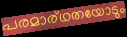
പരമാര്ഥതയോടും